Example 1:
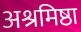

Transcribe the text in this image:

अश्रमिष्ठा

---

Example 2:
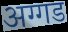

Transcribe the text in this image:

अग्गड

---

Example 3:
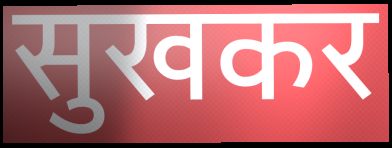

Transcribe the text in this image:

सुखकर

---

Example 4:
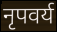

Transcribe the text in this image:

नृपवर्य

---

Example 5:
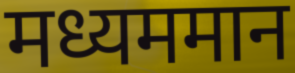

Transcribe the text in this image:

मध्यममान